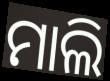
ମାଲି